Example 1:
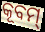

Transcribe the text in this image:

କୂବମ୍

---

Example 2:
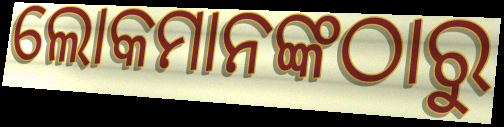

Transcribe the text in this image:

ଲୋକମାନଙ୍କଠାରୁ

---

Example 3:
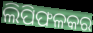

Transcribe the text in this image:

ଲିପିଫଳକର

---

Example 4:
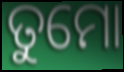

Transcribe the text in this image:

ତୁମୋ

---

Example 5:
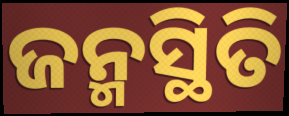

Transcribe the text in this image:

ଜନ୍ମସ୍ଥିତି